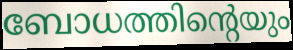
ബോധത്തിന്റെയും